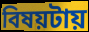
বিষয়টায়